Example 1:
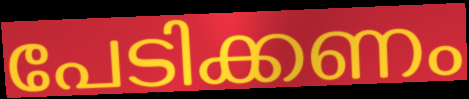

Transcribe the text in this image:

പേടിക്കണം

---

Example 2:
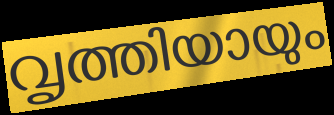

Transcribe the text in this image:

വൃത്തിയായും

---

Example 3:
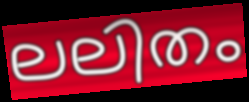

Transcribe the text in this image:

ലലിതം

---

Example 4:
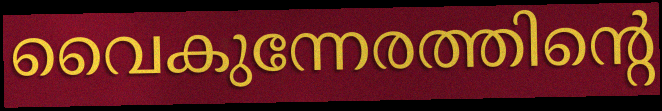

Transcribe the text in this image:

വൈകുന്നേരത്തിന്റെ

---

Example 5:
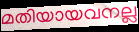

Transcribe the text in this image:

മതിയായവനല്ല